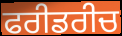
ਫਰੀਡਰੀਚ